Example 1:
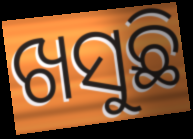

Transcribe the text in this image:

ଖସୁଛି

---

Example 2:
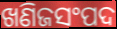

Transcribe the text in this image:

ଖଣିଜସଂପଦ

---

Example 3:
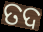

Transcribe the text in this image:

ତଦ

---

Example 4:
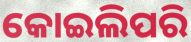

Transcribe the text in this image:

କୋଇଲିପରି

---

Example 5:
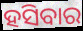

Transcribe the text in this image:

ହସିବାର